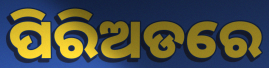
ପିରିଅଡରେ